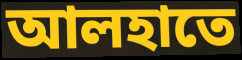
আলহাতে